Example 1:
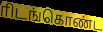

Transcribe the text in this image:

ரிடங்கொண்ட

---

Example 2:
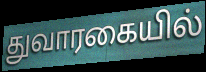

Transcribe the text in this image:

துவாரகையில்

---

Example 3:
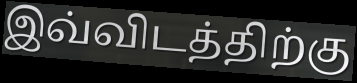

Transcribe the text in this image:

இவ்விடத்திற்கு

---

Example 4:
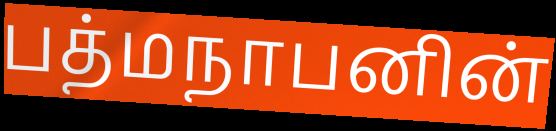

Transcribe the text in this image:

பத்மநாபனின்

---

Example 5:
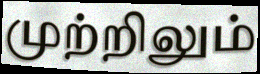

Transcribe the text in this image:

முற்றிலும்